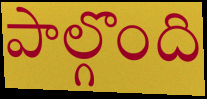
పాల్గొంది